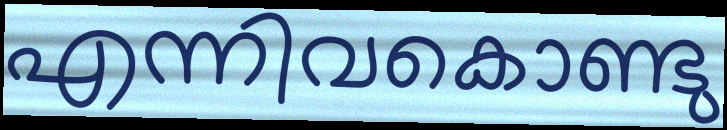
എന്നിവകൊണ്ടു